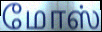
மோஸ்